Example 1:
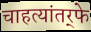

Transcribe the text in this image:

चाहत्यांतर्फे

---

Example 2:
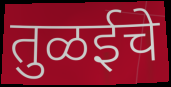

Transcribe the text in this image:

तुळईचे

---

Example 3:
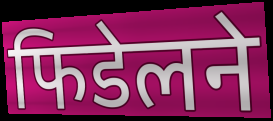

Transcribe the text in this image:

फिडेलने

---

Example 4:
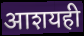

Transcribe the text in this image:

आशयही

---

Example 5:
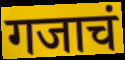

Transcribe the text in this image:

गजाचं